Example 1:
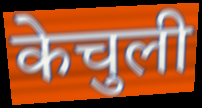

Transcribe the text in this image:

केचुली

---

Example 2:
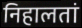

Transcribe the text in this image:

निहालतां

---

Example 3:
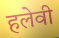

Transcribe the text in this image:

हलेवी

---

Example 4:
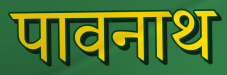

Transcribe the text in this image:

पावनाथ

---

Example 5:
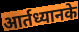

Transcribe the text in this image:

आर्तध्यानके